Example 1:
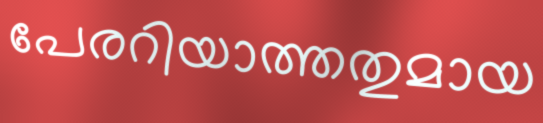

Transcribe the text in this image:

പേരറിയാത്തതുമായ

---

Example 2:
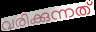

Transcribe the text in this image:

വരിക്കുന്നത്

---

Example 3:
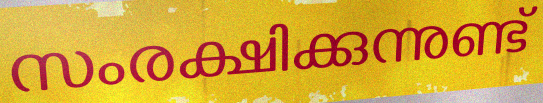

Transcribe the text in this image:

സംരക്ഷിക്കുന്നുണ്ട്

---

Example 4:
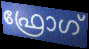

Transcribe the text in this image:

ഫ്രോഗ്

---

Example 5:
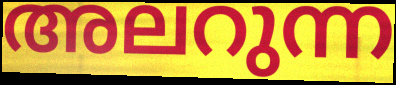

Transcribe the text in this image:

അലറുന്ന